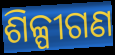
ଶିଳ୍ପୀଗଣ